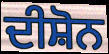
ਦੀਸ਼ੋਨ